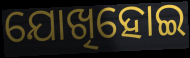
ଯୋଖିହୋଇ